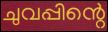
ചുവപ്പിന്റെ